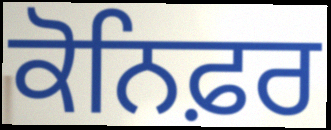
ਕੋਨਿਫ਼ਰ